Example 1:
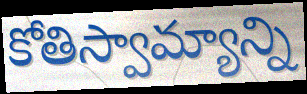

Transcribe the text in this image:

కోతిస్వామ్యాన్ని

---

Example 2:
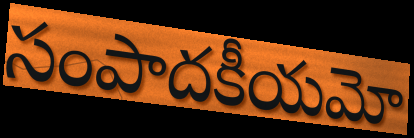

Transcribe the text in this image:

సంపాదకీయమో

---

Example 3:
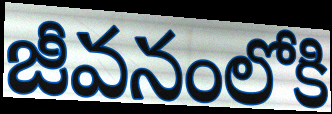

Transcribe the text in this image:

జీవనంలోకి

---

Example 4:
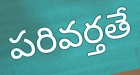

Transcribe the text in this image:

పరివర్తతే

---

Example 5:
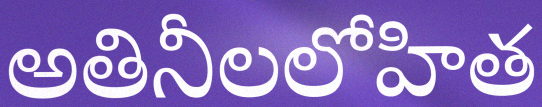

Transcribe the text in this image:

అతినీలలోహిత